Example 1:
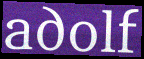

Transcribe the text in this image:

adolf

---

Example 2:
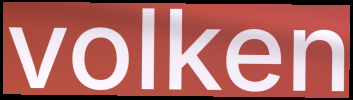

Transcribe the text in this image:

volken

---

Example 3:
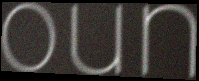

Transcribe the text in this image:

oun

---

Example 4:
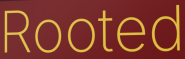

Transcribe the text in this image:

Rooted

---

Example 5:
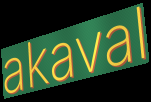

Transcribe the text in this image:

akaval